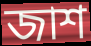
জাশ